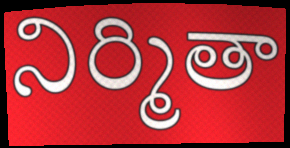
నిర్మితా